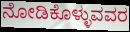
ನೋಡಿಕೊಳ್ಳುವವರ